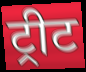
ट्रीट